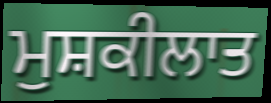
ਮੁਸ਼ਕੀਲਾਤ